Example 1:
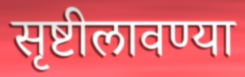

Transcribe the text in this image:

सृष्टीलावण्या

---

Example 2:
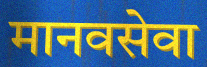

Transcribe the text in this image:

मानवसेवा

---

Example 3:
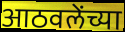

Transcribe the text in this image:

आठवलेंच्या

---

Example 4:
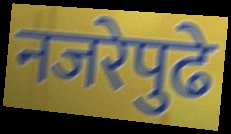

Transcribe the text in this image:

नजरेपुढे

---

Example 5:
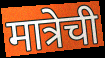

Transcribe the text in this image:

मात्रेची